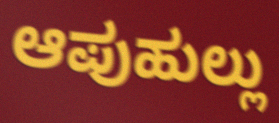
ಆಪುಹುಲ್ಲು